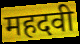
महदवी